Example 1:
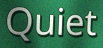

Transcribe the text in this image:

Quiet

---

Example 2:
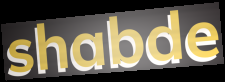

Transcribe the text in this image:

shabde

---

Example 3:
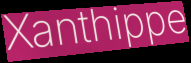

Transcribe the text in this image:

Xanthippe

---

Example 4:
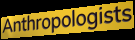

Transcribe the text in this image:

Anthropologists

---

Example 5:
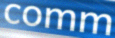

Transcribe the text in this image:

comm